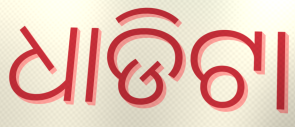
ଧାଡିଟା